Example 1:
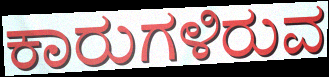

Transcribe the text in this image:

ಕಾರುಗಳಿರುವ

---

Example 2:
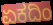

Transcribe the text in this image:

ಏಕದಿಂ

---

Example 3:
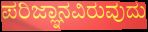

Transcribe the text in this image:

ಪರಿಜ್ಞಾನವಿರುವುದು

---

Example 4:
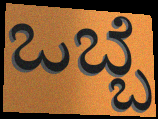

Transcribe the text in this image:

ಒಬ್ಬೆ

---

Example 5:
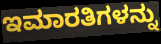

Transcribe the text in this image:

ಇಮಾರತಿಗಳನ್ನು